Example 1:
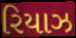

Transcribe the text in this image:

રિયાઝ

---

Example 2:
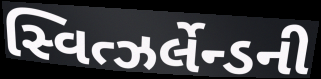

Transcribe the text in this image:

સ્વિત્ઝર્લેન્ડની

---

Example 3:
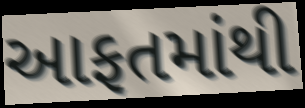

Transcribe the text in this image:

આફતમાંથી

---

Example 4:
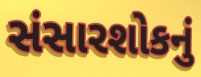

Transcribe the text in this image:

સંસારશોકનું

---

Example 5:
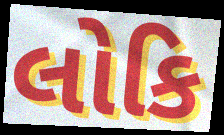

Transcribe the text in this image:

લોકિ